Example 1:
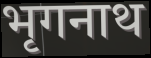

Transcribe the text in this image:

भृगनाथ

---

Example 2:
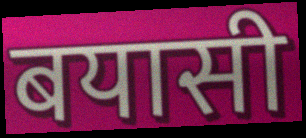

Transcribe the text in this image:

बयासी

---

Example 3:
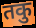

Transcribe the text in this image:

तकु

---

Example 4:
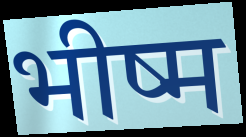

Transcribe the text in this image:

भीष्म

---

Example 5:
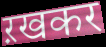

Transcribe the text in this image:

ऱखकर